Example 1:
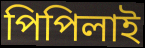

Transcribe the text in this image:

পিপিলাই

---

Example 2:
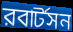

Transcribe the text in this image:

রবার্টসন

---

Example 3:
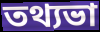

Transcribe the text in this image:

তথ্যভা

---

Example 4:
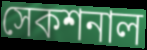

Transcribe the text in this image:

সেকশনাল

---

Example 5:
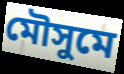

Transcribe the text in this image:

মৌসুমে